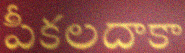
పీకలదాకా